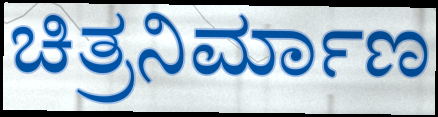
ಚಿತ್ರನಿರ್ಮಾಣ